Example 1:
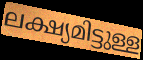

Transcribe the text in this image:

ലക്ഷ്യമിട്ടുള്ള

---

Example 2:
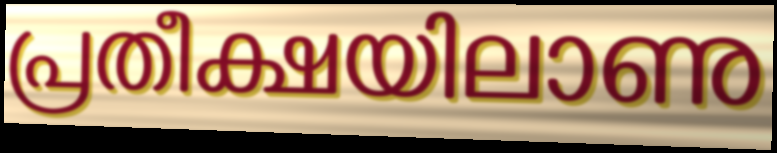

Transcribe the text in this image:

പ്രതീക്ഷയിലാണു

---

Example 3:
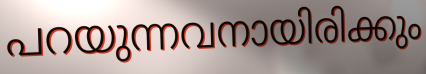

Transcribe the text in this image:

പറയുന്നവനായിരിക്കും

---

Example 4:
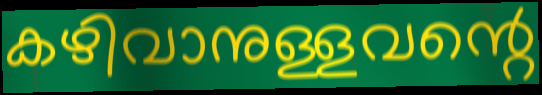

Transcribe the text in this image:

കഴിവാനുള്ളവന്റെ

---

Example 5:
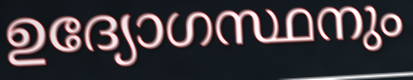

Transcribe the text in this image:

ഉദ്യോഗസ്ഥനും